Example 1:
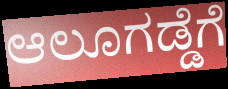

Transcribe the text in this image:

ಆಲೂಗಡ್ಡೆಗೆ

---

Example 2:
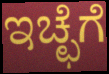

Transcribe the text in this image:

ಇಚ್ಛೆಗೆ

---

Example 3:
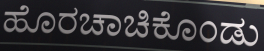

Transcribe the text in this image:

ಹೊರಚಾಚಿಕೊಂಡು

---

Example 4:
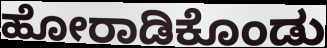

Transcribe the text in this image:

ಹೋರಾಡಿಕೊಂಡು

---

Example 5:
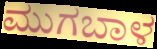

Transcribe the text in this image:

ಮುಗಬಾಳ